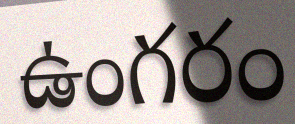
ఉంగరం